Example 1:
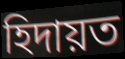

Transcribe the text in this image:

হিদায়ত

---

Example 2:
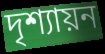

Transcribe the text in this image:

দৃশ্যায়ন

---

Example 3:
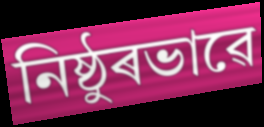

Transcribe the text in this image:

নিষ্ঠুৰভাৱে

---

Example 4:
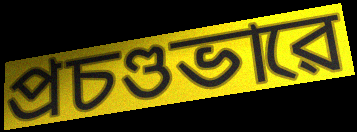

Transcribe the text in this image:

প্ৰচণ্ডভাৱে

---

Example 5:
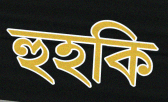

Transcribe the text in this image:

হুহকি